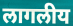
लागलीय